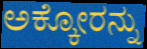
ಅಕ್ಕೋರನ್ನು